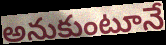
అనుకుంటూనే